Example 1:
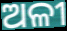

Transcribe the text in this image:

ଅଳୀ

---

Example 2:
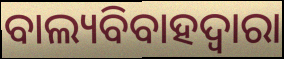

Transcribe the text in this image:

ବାଲ୍ୟବିବାହଦ୍ୱାରା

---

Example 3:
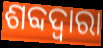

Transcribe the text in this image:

ଶବ୍ଦଦ୍ୱାରା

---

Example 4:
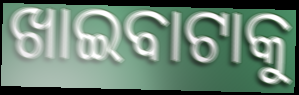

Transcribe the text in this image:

ଖାଇବାଟାକୁ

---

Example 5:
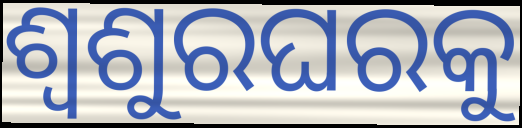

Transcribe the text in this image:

ଶ୍ୱଶୁରଘରକୁ